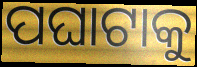
ପଘାଟାକୁ